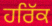
ਹਰਿੱਕ